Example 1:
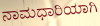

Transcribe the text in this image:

ನಾಮಧಾರಿಯಾಗಿ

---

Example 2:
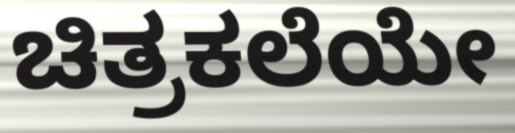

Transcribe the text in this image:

ಚಿತ್ರಕಲೆಯೇ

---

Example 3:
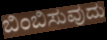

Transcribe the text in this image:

ಬಿಂಬಿಸುವುದು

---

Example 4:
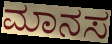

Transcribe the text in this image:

ಮಾನಸ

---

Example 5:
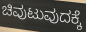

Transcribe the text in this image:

ಚಿವುಟುವುದಕ್ಕೆ